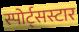
स्पोर्ट्सस्टार